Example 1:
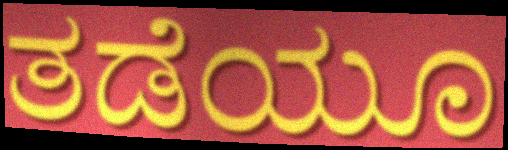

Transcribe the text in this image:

ತಡೆಯೂ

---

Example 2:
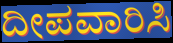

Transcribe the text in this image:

ದೀಪವಾರಿಸಿ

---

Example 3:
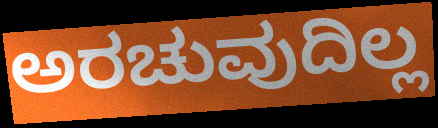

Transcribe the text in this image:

ಅರಚುವುದಿಲ್ಲ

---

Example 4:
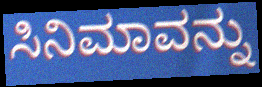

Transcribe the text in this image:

ಸಿನಿಮಾವನ್ನು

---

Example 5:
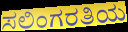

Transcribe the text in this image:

ಸಲಿಂಗರತಿಯ